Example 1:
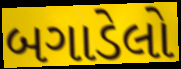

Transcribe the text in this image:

બગાડેલો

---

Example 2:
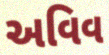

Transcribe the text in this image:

અવિવ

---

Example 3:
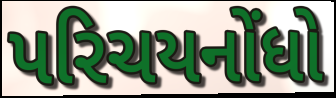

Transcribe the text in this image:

પરિચયનોંધો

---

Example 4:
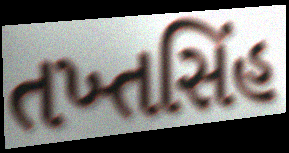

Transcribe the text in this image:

તખ્તસિંહ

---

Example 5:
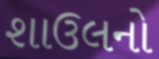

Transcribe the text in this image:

શાઉલનો